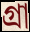
গ্ৰা